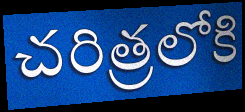
చరిత్రలోకి